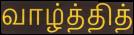
வாழ்த்தித்